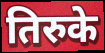
तिरुके